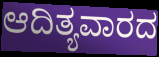
ಆದಿತ್ಯವಾರದ